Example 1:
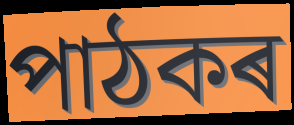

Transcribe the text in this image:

পাঠকৰ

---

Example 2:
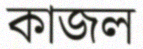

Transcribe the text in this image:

কাজল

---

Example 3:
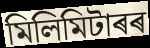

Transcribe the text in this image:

মিলিমিটাৰৰ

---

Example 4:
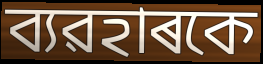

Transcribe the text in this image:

ব্যৱহাৰকে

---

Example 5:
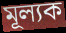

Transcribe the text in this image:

মূল্যক